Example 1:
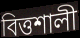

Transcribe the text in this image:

বিত্তশালী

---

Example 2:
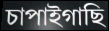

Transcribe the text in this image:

চাপাইগাছি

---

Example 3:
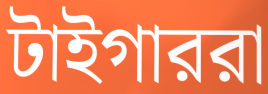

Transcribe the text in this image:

টাইগাররা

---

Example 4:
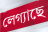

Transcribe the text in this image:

লেগ্যাছে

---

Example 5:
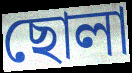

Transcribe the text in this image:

ছোলা